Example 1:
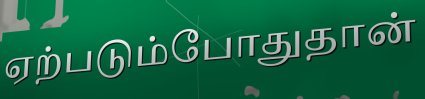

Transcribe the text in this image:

ஏற்படும்போதுதான்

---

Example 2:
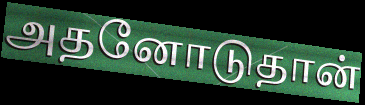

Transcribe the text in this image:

அதனோடுதான்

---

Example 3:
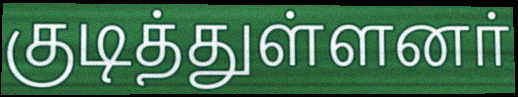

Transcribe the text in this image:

குடித்துள்ளனர்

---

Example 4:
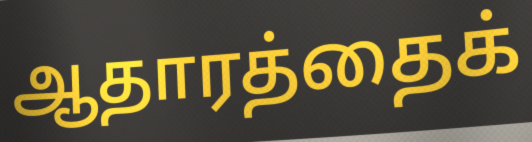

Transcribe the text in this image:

ஆதாரத்தைக்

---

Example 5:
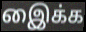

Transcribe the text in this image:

இைக்க